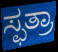
ಸ್ಫತ್ರಾ